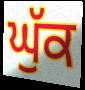
ਘੁੱਕ